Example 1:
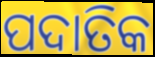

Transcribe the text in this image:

ପଦାତିକ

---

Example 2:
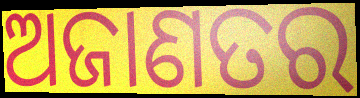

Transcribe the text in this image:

ଅଜାଣତର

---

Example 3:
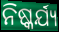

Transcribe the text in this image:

ନିଷ୍କର୍ଯ୍ୟ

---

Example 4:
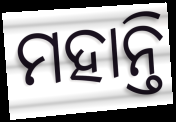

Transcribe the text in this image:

ମହାନ୍ତି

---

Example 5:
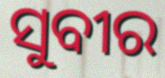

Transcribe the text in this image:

ସୁବୀର